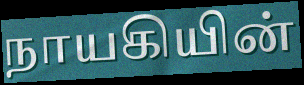
நாயகியின்